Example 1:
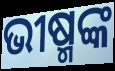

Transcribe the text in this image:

ଭୀଷ୍ମଙ୍କ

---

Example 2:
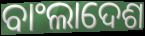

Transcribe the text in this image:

ବାଂଲାଦେଶ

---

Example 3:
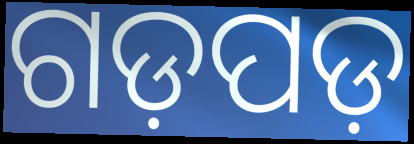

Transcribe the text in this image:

ଗଡ଼ପଡ଼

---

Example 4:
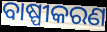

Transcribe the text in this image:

ବାଷ୍ପୀକରଣ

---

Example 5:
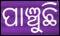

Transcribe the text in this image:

ପାଞ୍ଚୁଛି